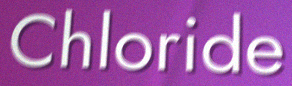
Chloride